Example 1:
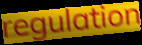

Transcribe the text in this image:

regulation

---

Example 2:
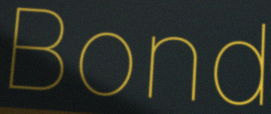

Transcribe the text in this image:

Bond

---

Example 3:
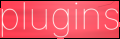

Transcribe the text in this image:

plugins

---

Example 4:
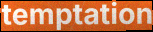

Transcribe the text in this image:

temptation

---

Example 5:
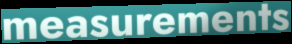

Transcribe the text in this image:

measurements